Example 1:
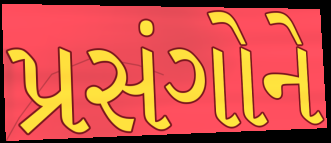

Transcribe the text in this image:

પ્રસંગોને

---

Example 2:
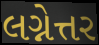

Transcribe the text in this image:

લગ્નેત્તર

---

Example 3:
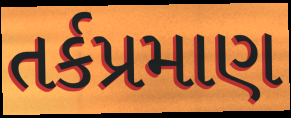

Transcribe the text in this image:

તર્કપ્રમાણ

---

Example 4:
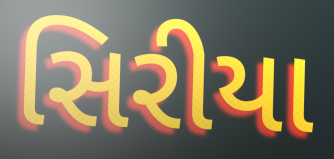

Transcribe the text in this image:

સિરીયા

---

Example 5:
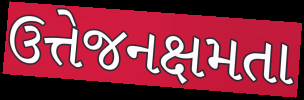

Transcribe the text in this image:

ઉત્તેજનક્ષમતા